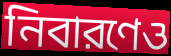
নিবারণেও